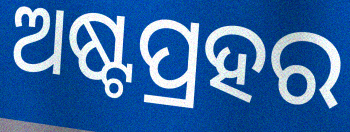
ଅଷ୍ଟପ୍ରହର